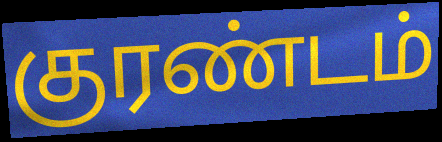
குரண்டம்